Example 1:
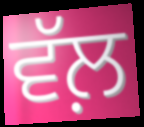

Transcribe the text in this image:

ਵੱਲ਼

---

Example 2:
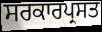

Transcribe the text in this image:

ਸਰਕਾਰਪ੍ਰਸਤ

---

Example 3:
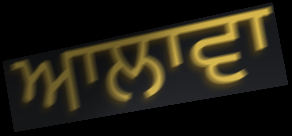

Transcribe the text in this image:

ਆਲਾਵਾ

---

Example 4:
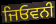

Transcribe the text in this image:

ਜਿਓਵਨੀ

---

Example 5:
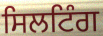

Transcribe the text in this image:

ਸਿਲਟਿੰਗ